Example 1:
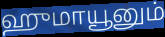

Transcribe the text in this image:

ஹுமாயூனும்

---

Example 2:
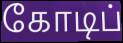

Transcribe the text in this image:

கோடிப்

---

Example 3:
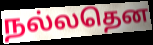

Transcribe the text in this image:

நல்லதென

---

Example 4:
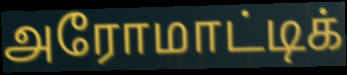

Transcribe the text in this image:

அரோமாட்டிக்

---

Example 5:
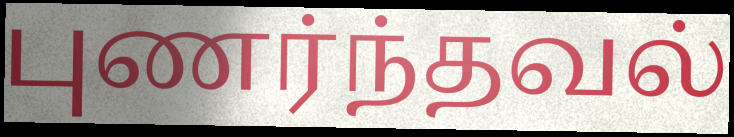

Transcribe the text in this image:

புணர்ந்தவல்